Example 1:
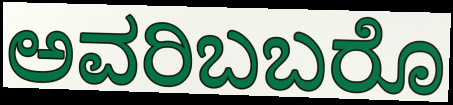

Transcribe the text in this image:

ಅವರಿಬಬರೊ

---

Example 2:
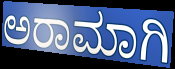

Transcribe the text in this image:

ಅರಾಮಾಗಿ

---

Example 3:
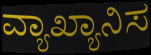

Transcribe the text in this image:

ವ್ಯಾಖ್ಯಾನಿಸ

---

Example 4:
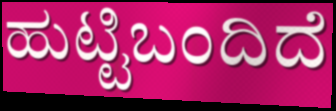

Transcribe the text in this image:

ಹುಟ್ಟಿಬಂದಿದೆ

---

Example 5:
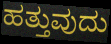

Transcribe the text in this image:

ಹತ್ತುವುದು